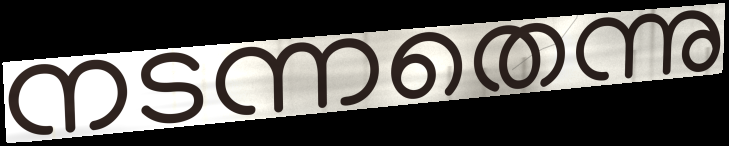
നടന്നതെന്നു